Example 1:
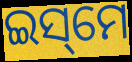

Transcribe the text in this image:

ଇସ୍‌ମେ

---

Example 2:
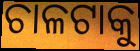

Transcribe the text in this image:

ଚାଳଟାକୁ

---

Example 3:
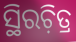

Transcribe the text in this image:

ସ୍ଥିରଚ଼ିତ୍ର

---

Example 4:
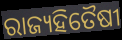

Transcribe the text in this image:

ରାଜ୍ୟହିତୈଷୀ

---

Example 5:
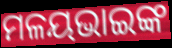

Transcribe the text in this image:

ମଳୟଭାଇଙ୍କ